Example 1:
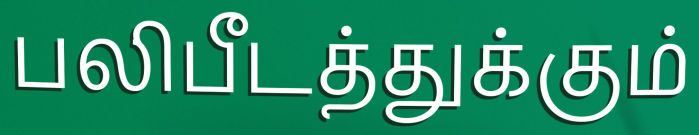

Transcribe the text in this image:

பலிபீடத்துக்கும்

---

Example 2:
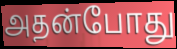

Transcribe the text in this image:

அதன்போது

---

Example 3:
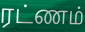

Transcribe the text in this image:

ரட்ணம்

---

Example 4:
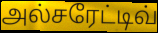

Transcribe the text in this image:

அல்சரேட்டிவ்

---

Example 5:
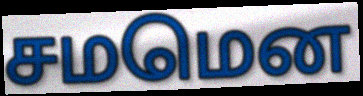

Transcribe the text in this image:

சமமென